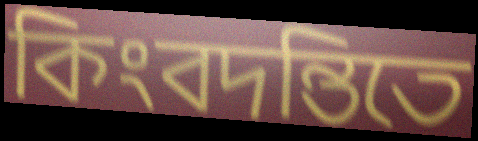
কিংবদন্তিতে